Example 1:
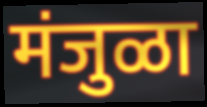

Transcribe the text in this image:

मंजुळा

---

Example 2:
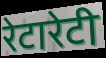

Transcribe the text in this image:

रेटारेटी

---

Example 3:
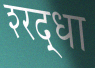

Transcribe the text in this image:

श्रद्धा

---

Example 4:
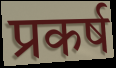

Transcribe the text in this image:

प्रकर्ष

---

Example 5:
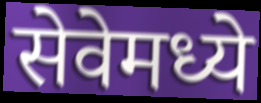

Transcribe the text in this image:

सेवेमध्ये